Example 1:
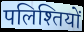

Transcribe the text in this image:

पलिश्तियों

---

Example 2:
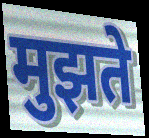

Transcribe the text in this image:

मुझते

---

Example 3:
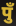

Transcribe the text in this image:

पुँ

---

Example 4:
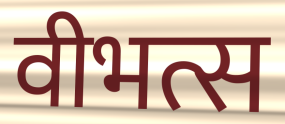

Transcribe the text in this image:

वीभत्स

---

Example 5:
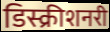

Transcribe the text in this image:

डिस्क्रीशनरी